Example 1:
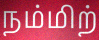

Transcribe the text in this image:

நம்மிற்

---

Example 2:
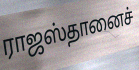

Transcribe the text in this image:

ராஜஸ்தானைச்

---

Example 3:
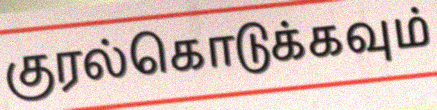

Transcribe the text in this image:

குரல்கொடுக்கவும்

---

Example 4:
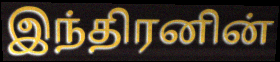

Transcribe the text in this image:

இந்திரனின்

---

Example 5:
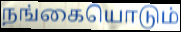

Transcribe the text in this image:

நங்கையொடும்